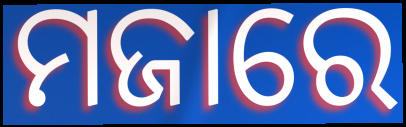
ମଜାରେ